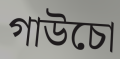
গাউচো